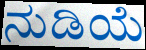
ನುಡಿಯೆ